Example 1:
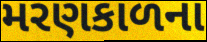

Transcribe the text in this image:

મરણકાળના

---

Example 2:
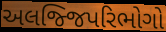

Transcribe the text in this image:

અલજ્જિપરિભોગો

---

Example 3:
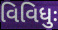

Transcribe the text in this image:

વિવિધુઃ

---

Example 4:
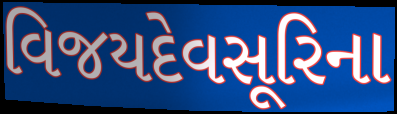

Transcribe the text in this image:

વિજયદેવસૂરિના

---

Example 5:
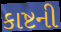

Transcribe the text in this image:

કાષ્ટની